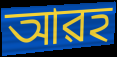
আৱহ